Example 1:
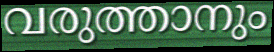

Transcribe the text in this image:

വരുത്താനും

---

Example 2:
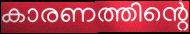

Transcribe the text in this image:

കാരണത്തിന്റെ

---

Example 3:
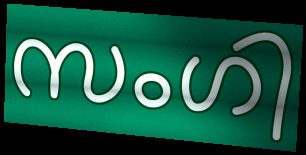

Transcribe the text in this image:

സംഗി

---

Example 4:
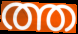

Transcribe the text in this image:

ത്ത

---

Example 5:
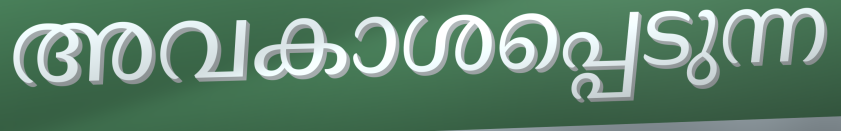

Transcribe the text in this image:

അവകാശപ്പെടുന്ന